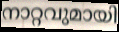
നാറ്റവുമായി